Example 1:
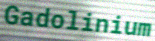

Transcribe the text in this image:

Gadolinium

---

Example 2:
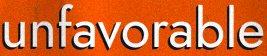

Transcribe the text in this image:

unfavorable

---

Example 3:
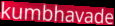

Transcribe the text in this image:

kumbhavade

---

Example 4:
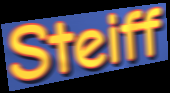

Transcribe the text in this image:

Steiff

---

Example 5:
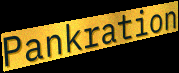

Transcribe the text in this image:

Pankration